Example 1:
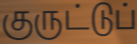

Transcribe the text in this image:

குருட்டுப்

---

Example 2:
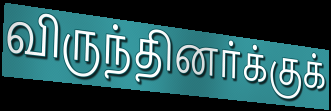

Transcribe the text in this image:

விருந்தினர்க்குக்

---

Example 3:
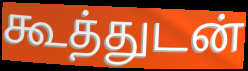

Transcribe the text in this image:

கூத்துடன்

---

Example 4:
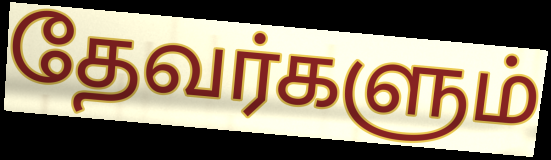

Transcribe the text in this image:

தேவர்களும்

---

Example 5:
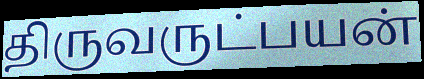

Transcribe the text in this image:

திருவருட்பயன்